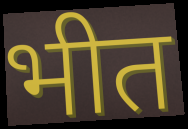
भीत